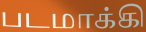
படமாக்கி